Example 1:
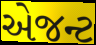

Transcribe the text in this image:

એજન્ટ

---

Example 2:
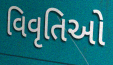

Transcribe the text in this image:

વિવૃતિઓ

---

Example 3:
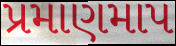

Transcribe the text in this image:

પ્રમાણમાપ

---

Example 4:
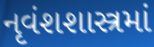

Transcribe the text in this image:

નૃવંશશાસ્ત્રમાં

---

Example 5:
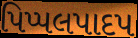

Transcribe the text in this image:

પિપ્પલપાદપ